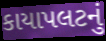
કાયાપલટનું